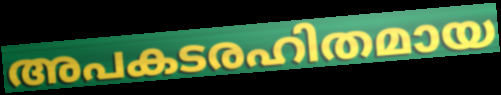
അപകടരഹിതമായ